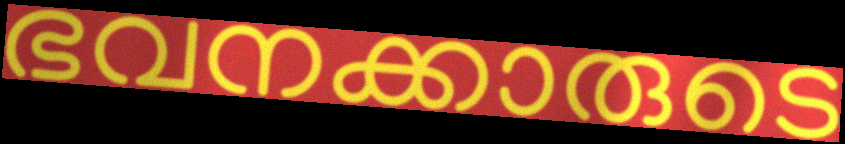
ഭവനക്കാരുടെ